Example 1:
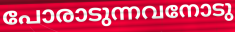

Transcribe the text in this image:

പോരാടുന്നവനോടു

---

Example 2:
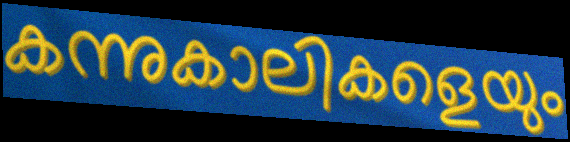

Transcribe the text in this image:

കന്നുകാലികളെയും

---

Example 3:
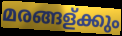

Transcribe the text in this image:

മരങ്ങള്ക്കും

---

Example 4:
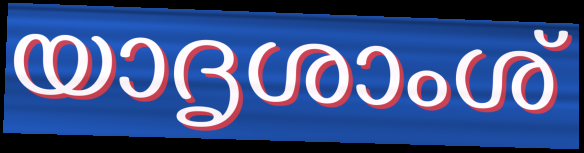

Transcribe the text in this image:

യാദൃശാംശ്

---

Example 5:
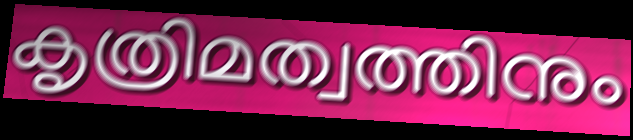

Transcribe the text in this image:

കൃത്രിമത്വത്തിനും